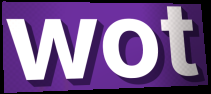
wot